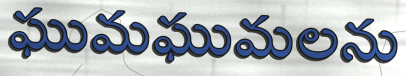
ఘుమఘుమలను